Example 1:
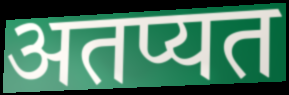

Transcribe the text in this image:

अतप्यत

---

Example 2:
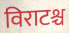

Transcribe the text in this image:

विराटश्च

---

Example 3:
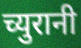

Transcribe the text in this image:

च्युरानी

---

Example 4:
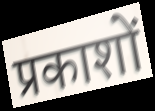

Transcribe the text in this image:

प्रकाशों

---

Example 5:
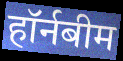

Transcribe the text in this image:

हॉर्नबीम